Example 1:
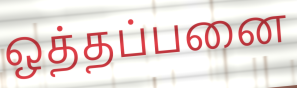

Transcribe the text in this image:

ஒத்தப்பனை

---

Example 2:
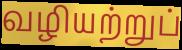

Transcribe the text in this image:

வழியற்றுப்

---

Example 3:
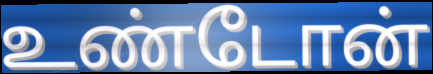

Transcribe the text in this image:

உண்டோன்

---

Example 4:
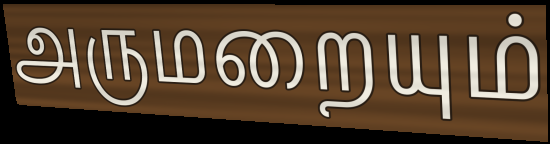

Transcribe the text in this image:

அருமறையும்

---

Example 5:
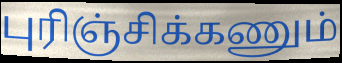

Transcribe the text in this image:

புரிஞ்சிக்கணும்